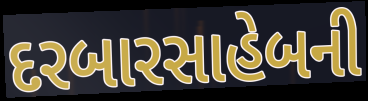
દરબારસાહેબની